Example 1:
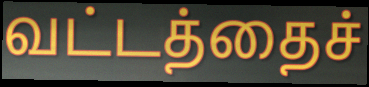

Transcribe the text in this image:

வட்டத்தைச்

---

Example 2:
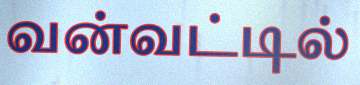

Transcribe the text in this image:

வன்வட்டில்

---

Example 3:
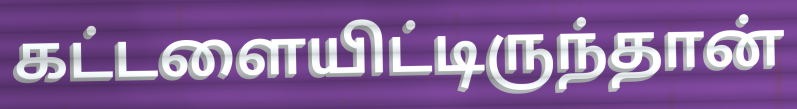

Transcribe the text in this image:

கட்டளையிட்டிருந்தான்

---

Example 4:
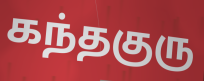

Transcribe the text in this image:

கந்தகுரு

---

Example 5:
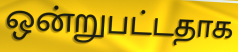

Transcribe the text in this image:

ஒன்றுபட்டதாக